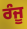
ਰੰਜੂ